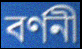
বৰ্ণনী